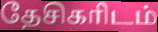
தேசிகரிடம்